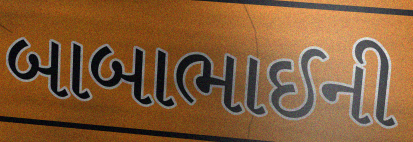
બાબાભાઈની